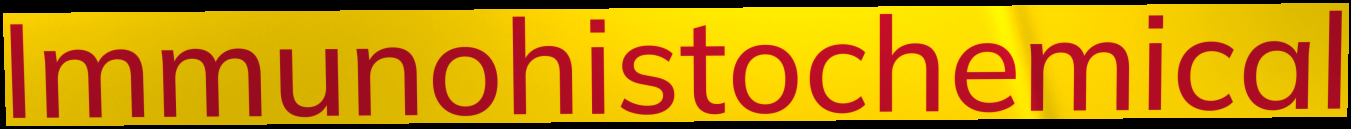
Immunohistochemical